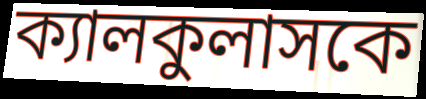
ক্যালকুলাসকে